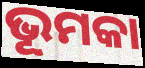
ଭୂମକା